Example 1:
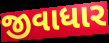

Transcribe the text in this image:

જીવાધાર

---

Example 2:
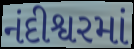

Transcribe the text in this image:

નંદીશ્વરમાં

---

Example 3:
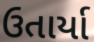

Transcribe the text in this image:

ઉતાર્યા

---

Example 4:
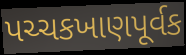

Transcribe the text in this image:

પચ્ચકખાણપૂર્વક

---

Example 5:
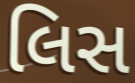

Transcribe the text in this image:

લિસ